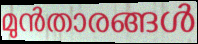
മുൻതാരങ്ങൾ